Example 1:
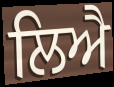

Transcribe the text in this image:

ਲਿਐ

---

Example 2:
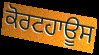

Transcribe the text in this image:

ਕੋਰਟਹਾਊਸ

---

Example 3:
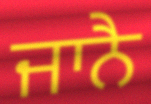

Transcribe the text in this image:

ਜਾਨੈ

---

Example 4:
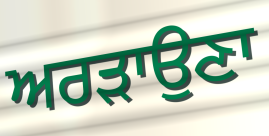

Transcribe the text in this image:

ਅਰੜਾਉਣਾ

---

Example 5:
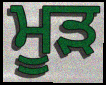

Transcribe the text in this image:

ਮੂੜ